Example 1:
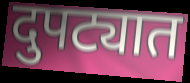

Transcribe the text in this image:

दुपट्यात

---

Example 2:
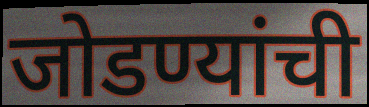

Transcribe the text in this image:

जोडण्यांची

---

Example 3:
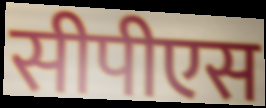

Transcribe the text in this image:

सीपीएस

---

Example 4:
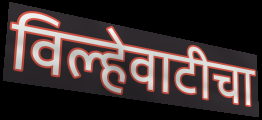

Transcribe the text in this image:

विल्हेवाटीचा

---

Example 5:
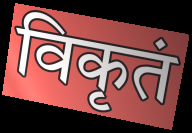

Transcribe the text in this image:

विकृतं